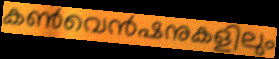
കൺവെൻഷനുകളിലും